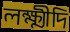
লক্ষ্মীদি